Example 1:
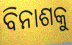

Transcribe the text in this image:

ବିନାଶକୁ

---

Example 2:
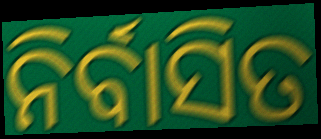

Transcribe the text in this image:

ନିର୍ବାସିତ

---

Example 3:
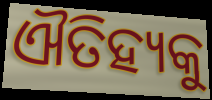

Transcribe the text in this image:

ଐତିହ୍ୟକୁ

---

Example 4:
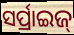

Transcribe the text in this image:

ସର୍ପ୍ରାଇଜ୍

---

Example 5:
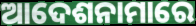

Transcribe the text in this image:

ଆଦେଶନାମାରେ